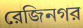
রেজিনগর